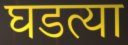
घडत्या